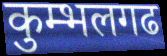
कुम्भलगढ